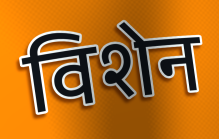
विशेन